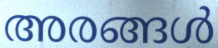
അരങ്ങൾ